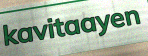
kavitaayen